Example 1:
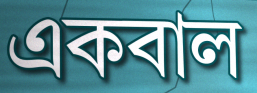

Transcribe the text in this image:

একবাল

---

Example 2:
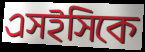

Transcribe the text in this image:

এসইসিকে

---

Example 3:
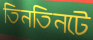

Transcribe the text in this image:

তিনতিনটে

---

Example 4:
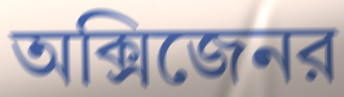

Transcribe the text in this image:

অক্সিজেনর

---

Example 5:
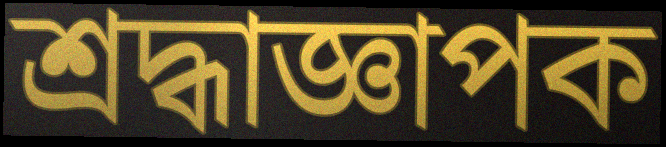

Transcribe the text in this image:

শ্রদ্ধাজ্ঞাপক